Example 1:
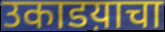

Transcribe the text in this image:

उकाडय़ाचा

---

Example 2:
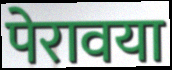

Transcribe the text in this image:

पेरावया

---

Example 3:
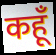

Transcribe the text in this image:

कहूँ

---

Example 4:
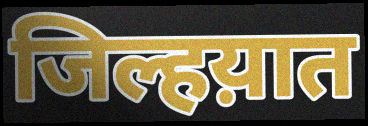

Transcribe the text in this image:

जिल्हय़ात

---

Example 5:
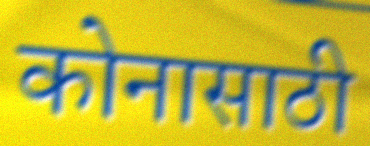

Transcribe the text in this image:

कोनासाठी